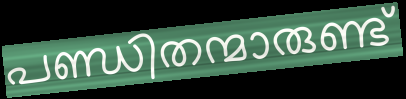
പണ്ഡിതന്മാരുണ്ട്